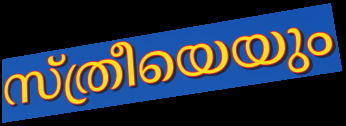
സ്ത്രീയെയും